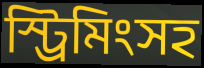
স্ট্রিমিংসহ